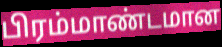
பிரம்மாண்டமான